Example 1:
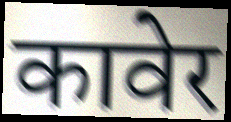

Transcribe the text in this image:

कावेर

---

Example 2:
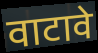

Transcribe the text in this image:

वाटावे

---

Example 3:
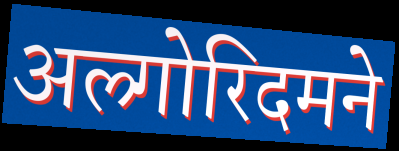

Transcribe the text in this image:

अल्गोरिदमने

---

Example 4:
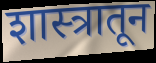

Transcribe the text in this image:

शास्त्रातून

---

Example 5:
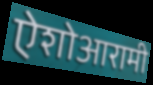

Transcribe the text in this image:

ऐशोआरामी